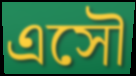
এসৌ